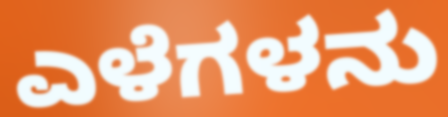
ಎಳೆಗಳನು